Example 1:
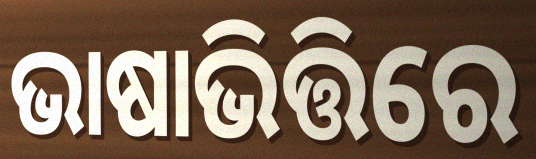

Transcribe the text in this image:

ଭାଷାଭିତ୍ତିରେ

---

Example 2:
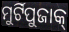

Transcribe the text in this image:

ମୁର୍ଟିପୁଜାକ୍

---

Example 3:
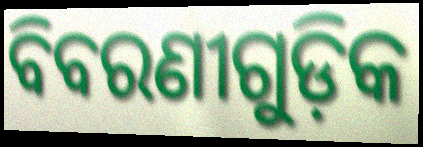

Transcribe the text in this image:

ବିବରଣୀଗୁଡ଼ିକ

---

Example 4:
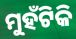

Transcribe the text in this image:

ମୁହଁଟିକି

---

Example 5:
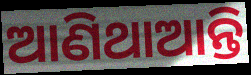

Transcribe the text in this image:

ଆଣିଥାଆନ୍ତି